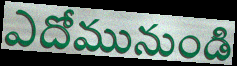
ఎదోమునుండి